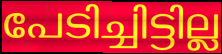
പേടിച്ചിട്ടില്ല